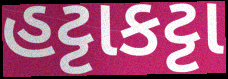
હટ્ટાકટ્ટા